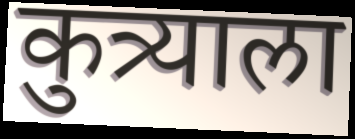
कुत्र्याला